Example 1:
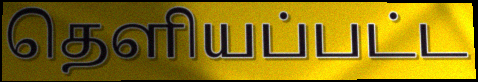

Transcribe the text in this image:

தெளியப்பட்ட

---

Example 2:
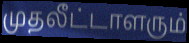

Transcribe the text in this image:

முதலீட்டாளரும்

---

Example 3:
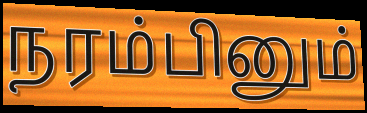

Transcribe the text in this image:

நரம்பினும்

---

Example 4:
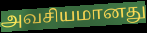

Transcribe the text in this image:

அவசியமானது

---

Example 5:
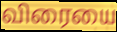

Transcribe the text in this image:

விரையை